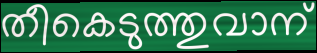
തീകെടുത്തുവാന്